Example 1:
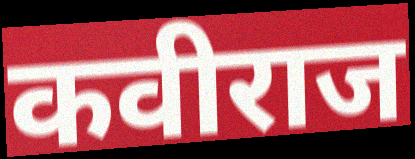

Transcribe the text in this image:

कवीराज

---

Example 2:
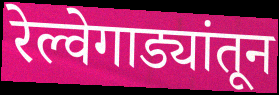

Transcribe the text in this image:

रेल्वेगाड्यांतून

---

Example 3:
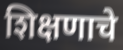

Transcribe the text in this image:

शिक्षणाचे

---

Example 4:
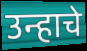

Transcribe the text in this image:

उन्हाचे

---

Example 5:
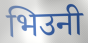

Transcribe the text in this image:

भिउनी